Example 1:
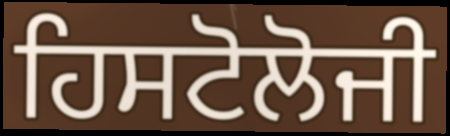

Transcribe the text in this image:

ਹਿਸਟੋਲੋਜੀ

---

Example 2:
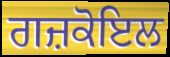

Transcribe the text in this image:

ਗਜ਼ਕੋਇਲ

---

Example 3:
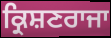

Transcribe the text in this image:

ਕ੍ਰਿਸ਼ਣਰਾਜਾ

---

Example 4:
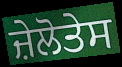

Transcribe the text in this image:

ਜ਼ੇਲੋਤੇਸ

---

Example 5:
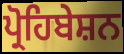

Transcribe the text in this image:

ਪ੍ਰੋਹਿਬੇਸ਼ਨ